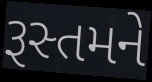
રૂસ્તમને